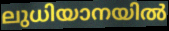
ലുധിയാനയിൽ